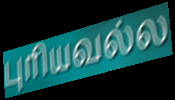
புரியவல்ல